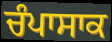
ਚੰਪਾਸਾਕ